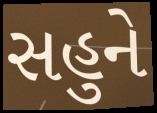
સહુને